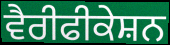
ਵੈਰੀਫੀਕੇਸ਼ਨ